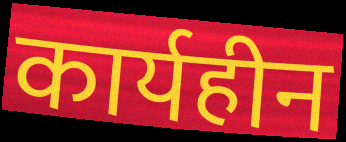
कार्यहीन